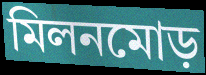
মিলনমোড়